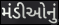
મંડીઓનું